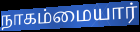
நாகம்மையார்